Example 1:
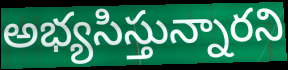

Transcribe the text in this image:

అభ్యసిస్తున్నారని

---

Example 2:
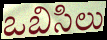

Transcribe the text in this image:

ఒబిసిలు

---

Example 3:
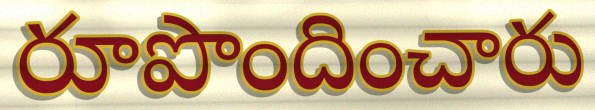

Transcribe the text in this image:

రూపొందించారు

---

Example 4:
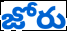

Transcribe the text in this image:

జోరు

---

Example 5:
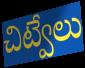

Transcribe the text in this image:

చిట్వేలు